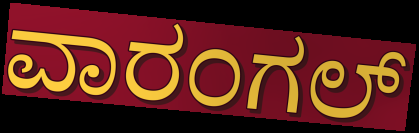
ವಾರಂಗಲ್